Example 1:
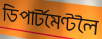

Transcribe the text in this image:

ডিপাৰ্টমেণ্টলৈ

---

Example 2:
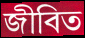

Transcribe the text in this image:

জীবিত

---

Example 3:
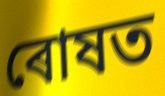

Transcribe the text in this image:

ৰোষত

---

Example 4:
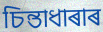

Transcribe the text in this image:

চিন্তাধাৰাৰ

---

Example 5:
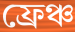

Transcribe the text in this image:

ফ্ৰেঞ্চ